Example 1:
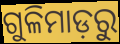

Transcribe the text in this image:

ଗୁଳିମାଡ଼ରୁ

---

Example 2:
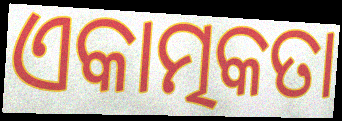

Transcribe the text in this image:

ଏକାତ୍ମକତା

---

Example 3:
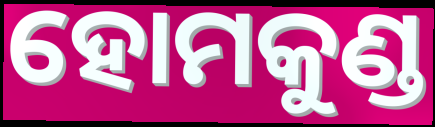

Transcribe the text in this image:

ହୋମକୁଣ୍ଡ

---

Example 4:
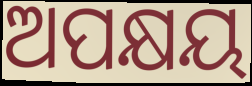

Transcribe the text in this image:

ଅପକ୍ଷୟ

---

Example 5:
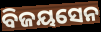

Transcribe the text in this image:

ବିଜୟସେନ